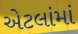
એટલાંમાં